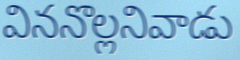
విననొల్లనివాడు